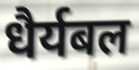
धैर्यबल